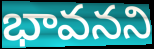
భావనని